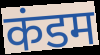
कंडम